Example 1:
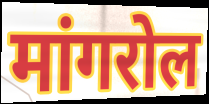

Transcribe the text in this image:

मांगरोल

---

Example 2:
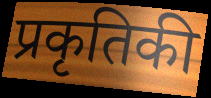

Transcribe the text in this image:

प्रकृतिकी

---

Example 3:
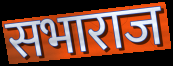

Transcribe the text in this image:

सभाराज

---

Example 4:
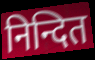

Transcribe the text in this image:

निन्दित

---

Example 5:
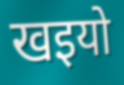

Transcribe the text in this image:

खइयो